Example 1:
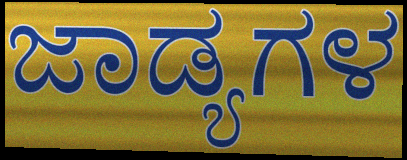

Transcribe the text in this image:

ಜಾಡ್ಯಗಳ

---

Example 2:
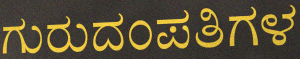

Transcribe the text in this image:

ಗುರುದಂಪತಿಗಳ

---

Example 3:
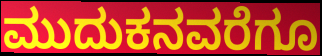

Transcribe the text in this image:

ಮುದುಕನವರೆಗೂ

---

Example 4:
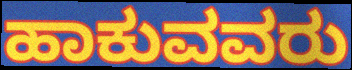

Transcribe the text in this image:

ಹಾಕುವವರು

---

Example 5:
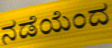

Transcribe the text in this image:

ನಡೆಯೆಂದ